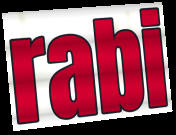
rabi